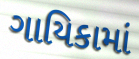
ગાયિકામાં